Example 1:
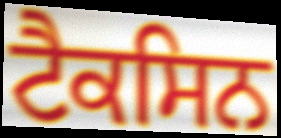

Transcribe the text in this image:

ਟੈਕਸਿਨ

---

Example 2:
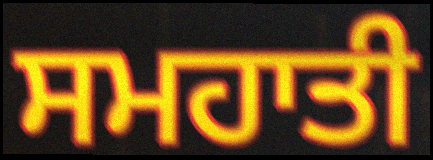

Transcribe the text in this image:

ਸਮਹਾਤੀ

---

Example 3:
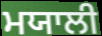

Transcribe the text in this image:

ਮਯਾਲੀ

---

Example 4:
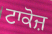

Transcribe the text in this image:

ਟਾਕੋਜ਼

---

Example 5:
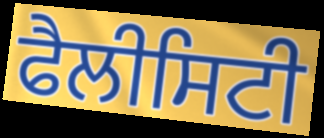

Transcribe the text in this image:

ਫੈਲੀਸਿਟੀ